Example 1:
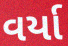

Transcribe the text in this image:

વર્યા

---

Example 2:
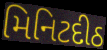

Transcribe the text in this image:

મિનિટદીઠ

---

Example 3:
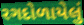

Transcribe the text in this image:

રગદોળાયેલું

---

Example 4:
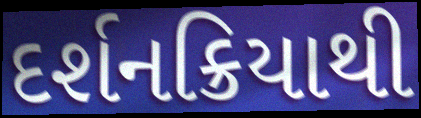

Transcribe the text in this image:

દર્શનક્રિયાથી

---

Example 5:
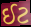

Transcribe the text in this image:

ઈટ